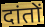
दांतों